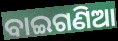
ବାଇଗଣିଆ